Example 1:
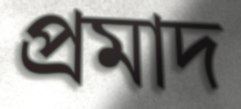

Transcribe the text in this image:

প্রমাদ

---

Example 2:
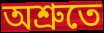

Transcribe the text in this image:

অশ্রুতে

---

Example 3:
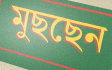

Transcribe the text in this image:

মুছছেন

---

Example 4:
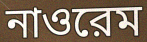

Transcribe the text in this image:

নাওরেম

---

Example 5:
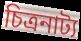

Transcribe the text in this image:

চিত্রনাট্য